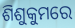
ଶିଶୁକୁମରେ